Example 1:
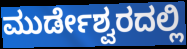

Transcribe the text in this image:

ಮುರ್ಡೇಶ್ವರದಲ್ಲಿ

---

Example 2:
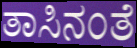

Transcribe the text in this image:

ತಾಸಿನಂತೆ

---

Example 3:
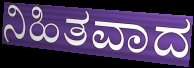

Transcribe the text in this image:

ನಿಹಿತವಾದ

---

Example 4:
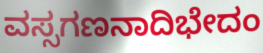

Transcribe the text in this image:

ವಸ್ಸಗಣನಾದಿಭೇದಂ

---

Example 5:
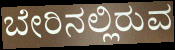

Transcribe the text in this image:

ಬೇರಿನಲ್ಲಿರುವ